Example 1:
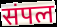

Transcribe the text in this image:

संपल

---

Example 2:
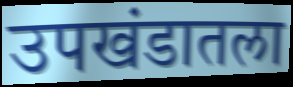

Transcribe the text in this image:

उपखंडातला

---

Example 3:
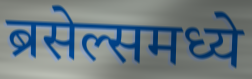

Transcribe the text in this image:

ब्रसेल्समध्ये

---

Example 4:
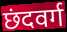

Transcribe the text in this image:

छंदवर्ग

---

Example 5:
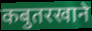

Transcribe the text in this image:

कबुतरखाने